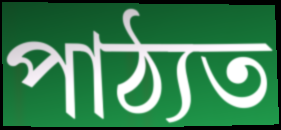
পাঠ্যত